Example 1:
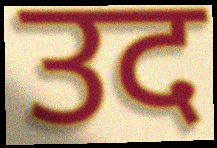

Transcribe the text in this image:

उद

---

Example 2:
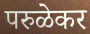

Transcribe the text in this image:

परुळेकर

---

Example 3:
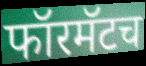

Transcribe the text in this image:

फॉरमॅटच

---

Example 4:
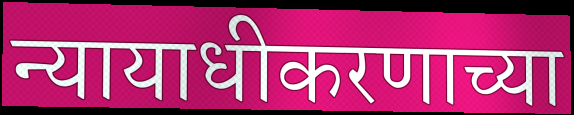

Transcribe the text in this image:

न्यायाधीकरणाच्या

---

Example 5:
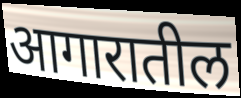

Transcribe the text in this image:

आगारातील